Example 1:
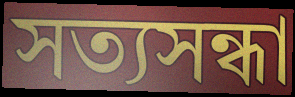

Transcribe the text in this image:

সত্যসন্ধা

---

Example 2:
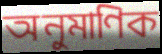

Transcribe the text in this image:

অনুমাণিক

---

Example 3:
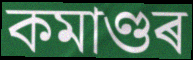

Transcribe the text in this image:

কমাণ্ডৰ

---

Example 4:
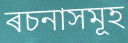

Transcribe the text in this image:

ৰচনাসমূহ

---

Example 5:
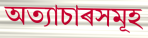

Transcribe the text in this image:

অত্যাচাৰসমূহ